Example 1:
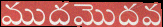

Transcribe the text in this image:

ముదమొదవ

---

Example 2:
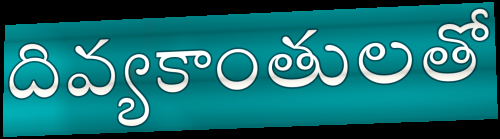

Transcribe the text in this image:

దివ్యకాంతులతో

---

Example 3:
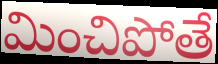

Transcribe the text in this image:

మించిపోతే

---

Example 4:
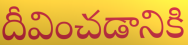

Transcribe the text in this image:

దీవించడానికి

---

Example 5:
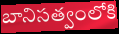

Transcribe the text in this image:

బానిసత్వంలోకి